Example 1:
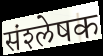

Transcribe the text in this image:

संश्लेषक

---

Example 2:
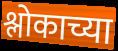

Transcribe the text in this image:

श्लोकाच्या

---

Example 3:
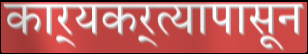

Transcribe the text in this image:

कार्यकर्त्यापासून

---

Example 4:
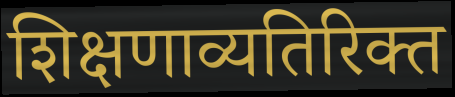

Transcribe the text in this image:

शिक्षणाव्यतिरिक्त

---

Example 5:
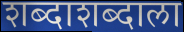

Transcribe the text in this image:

शब्दाशब्दाला